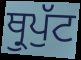
ਥ੍ਰੁਪੁੱਟ